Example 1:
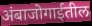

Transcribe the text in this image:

अंबाजोगाईतील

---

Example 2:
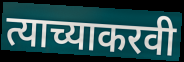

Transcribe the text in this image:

त्याच्याकरवी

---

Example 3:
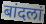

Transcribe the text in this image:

बांदलां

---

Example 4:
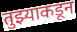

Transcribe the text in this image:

तुझ्याकडून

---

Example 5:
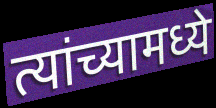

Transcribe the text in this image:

त्यांच्यामध्ये